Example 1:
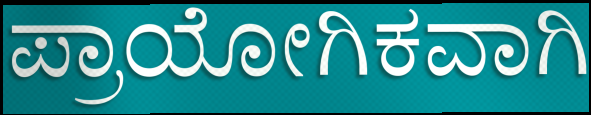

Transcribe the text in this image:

ಪ್ರಾಯೋಗಿಕವಾಗಿ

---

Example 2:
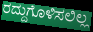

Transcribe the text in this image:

ರದ್ದುಗೊಳಿಸಲಿಲ್ಲ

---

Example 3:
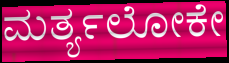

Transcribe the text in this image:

ಮರ್ತ್ಯಲೋಕೇ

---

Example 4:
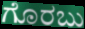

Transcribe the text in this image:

ಗೊರಬು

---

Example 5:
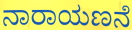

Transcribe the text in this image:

ನಾರಾಯಣನೆ